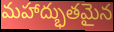
మహాద్భుతమైన